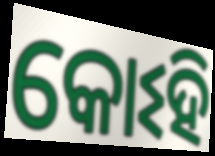
କୋଽହି